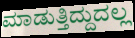
ಮಾಡುತ್ತಿದ್ದುದಲ್ಲ